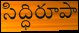
సిద్ధిరూపా